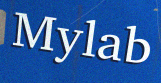
Mylab